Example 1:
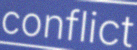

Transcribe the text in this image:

conflict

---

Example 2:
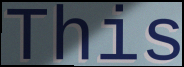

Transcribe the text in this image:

This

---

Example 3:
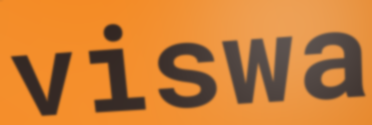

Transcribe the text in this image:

viswa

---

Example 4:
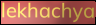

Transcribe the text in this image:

lekhachya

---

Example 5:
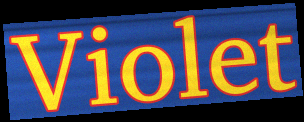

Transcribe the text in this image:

Violet